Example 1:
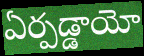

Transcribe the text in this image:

ఏర్పడ్డాయో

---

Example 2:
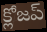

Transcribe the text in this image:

క్లోజప్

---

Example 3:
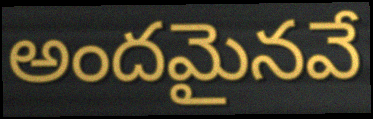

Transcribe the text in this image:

అందమైనవే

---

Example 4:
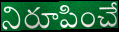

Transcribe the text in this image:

నిరూపించే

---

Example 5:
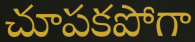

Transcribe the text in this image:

చూపకపోగా